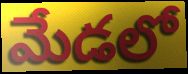
మేడలో